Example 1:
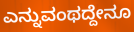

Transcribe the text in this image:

ಎನ್ನುವಂಥದ್ದೇನೂ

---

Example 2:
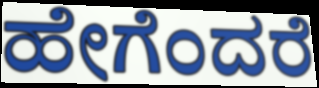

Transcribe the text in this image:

ಹೇಗೆಂದರೆ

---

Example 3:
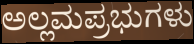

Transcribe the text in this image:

ಅಲ್ಲಮಪ್ರಭುಗಳು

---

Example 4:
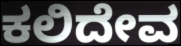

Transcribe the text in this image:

ಕಲಿದೇವ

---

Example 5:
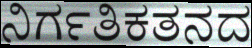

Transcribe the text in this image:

ನಿರ್ಗತಿಕತನದ